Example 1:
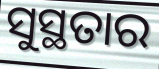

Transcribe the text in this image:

ସୁସ୍ଥତାର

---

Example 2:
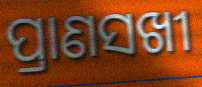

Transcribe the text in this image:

ପ୍ରାଣସଖୀ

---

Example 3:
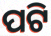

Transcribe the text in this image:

ପଟି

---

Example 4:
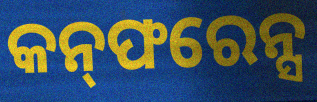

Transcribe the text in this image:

କନ୍‌ଫରେନ୍ସ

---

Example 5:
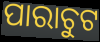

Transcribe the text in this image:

ପାରାଚୁଟ